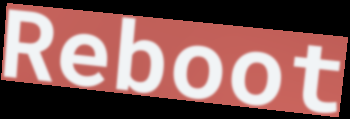
Reboot